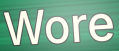
Wore